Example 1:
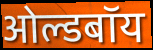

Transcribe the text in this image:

ओल्डबॉय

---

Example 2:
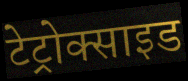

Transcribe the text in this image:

टेट्रोक्साइड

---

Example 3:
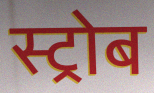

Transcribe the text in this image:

स्ट्रोब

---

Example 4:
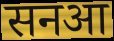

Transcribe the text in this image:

सनआ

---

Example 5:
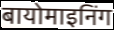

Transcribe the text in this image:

बायोमाइनिंग